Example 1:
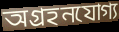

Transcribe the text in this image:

অগ্রহনযোগ্য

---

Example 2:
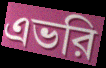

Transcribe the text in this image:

এভরি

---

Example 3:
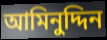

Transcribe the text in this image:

আমিনুদ্দিন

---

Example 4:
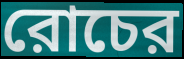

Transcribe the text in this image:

রোচের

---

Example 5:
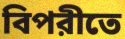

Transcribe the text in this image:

বিপরীতে